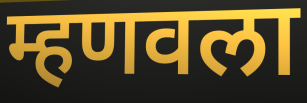
म्हणवला